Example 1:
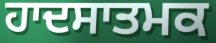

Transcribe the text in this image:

ਹਾਦਸਾਤਮਕ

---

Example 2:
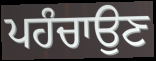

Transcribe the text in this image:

ਪਹੰਚਾਉਣ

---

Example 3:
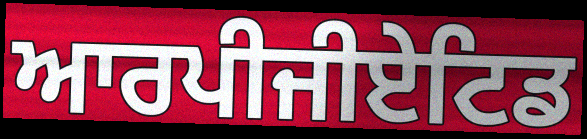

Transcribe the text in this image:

ਆਰਪੀਜੀਏਟਿਡ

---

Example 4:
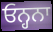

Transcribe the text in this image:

ਓਨ੍ਹਨਾ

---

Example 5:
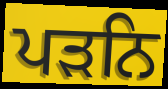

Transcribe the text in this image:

ਪੜਨਿ